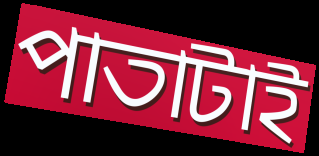
পাতাটাই